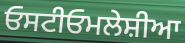
ਓਸਟੀਓਮਲੇਸ਼ੀਆ